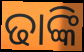
ଢାଙ୍କି